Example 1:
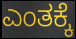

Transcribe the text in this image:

ಎಂತಕ್ಕೆ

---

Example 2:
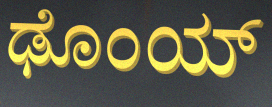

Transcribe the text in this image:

ಢೊಂಯ್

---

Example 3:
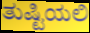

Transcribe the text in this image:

ತುಷ್ಟಿಯಲಿ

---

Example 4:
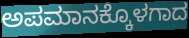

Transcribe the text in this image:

ಅಪಮಾನಕ್ಕೊಳಗಾದ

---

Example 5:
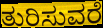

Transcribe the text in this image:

ತುರಿಸುವರೆ